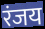
रंजय